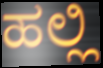
ಹಲ್ಲಿ